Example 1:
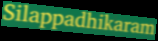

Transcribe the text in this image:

Silappadhikaram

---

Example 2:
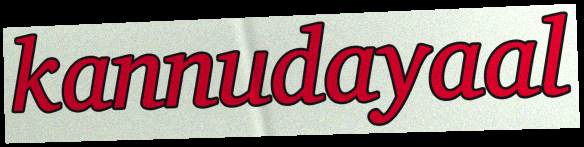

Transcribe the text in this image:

kannudayaal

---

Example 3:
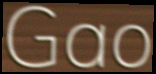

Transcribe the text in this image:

Gao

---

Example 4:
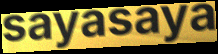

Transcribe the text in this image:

sayasaya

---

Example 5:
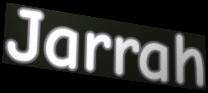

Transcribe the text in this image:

Jarrah